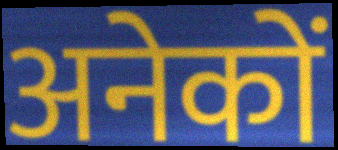
अनेकों